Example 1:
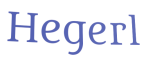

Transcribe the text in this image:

Hegerl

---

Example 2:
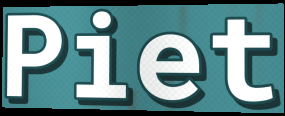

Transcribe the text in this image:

Piet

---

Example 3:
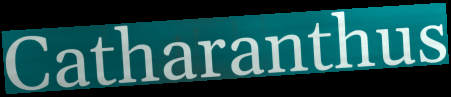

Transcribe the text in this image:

Catharanthus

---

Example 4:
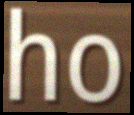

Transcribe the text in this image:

ho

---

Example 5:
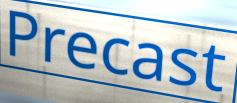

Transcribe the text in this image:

Precast